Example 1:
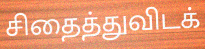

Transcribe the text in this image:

சிதைத்துவிடக்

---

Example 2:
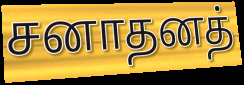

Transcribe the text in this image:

சனாதனத்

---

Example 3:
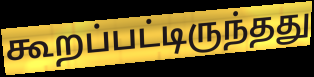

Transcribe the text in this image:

கூறப்பட்டிருந்தது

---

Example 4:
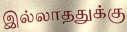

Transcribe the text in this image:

இல்லாததுக்கு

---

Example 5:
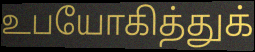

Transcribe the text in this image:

உபயோகித்துக்